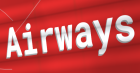
Airways